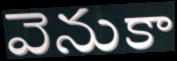
వెనుకా